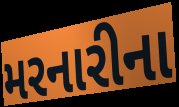
મરનારીના